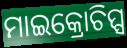
ମାଇକ୍ରୋଚିପ୍ସ